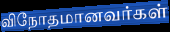
விநோதமானவர்கள்